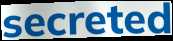
secreted